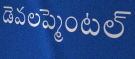
డెవలప్మెంటల్